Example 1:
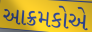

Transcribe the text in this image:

આક્રમકોએ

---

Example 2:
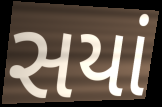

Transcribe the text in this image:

સયાં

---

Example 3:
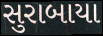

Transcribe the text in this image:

સુરાબાયા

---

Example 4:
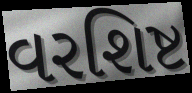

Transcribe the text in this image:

વરશિષ્ટ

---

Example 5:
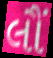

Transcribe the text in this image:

લૌં